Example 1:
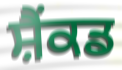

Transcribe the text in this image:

ਸ਼ੈਂਕਡ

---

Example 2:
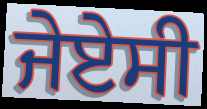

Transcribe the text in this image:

ਜੇਏਸੀ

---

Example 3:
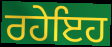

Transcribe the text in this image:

ਰਹੇਇਹ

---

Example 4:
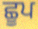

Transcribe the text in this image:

ਛੂਪ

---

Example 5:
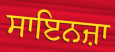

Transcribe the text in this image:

ਸਾਇਨਜ਼ਾ